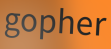
gopher